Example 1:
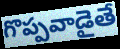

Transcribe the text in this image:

గొప్పవాడైతే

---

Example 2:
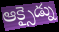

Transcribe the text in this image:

ఆక్సైడ్ను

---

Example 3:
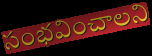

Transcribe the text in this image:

సంభవించాలని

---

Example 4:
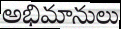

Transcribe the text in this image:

అభిమానులు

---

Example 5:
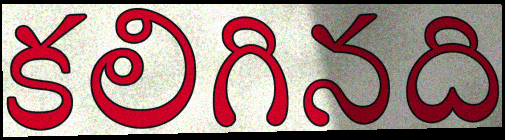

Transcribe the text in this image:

కలిగినది